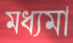
মধ্যমা